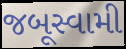
જબૂસ્વામી